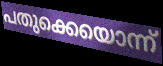
പതുക്കെയൊന്ന്